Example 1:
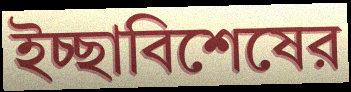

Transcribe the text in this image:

ইচ্ছাবিশেষের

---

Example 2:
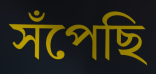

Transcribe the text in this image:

সঁপেছি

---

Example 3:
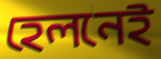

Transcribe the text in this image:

হেলনেই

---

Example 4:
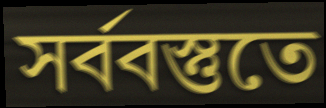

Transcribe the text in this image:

সর্ববস্তুতে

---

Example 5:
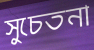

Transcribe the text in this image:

সুচেতনা